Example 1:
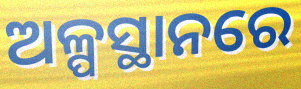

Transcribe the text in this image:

ଅଳ୍ପସ୍ଥାନରେ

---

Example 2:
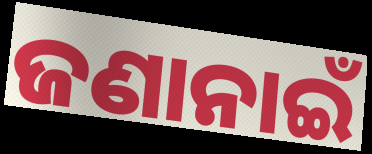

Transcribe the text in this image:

ଜଣାନାଇଁ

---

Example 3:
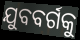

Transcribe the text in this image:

ଯୁବବର୍ଗକୁ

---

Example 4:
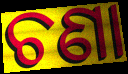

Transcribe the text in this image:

ଚଣା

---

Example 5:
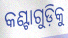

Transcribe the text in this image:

କଣ୍ଟାଗୁଡ଼ିକୁ